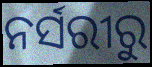
ନର୍ସରୀରୁ